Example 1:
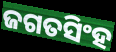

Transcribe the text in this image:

ଜଗତସିଂହ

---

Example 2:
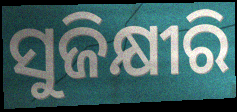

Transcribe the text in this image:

ସୁଜିକ୍ଷୀରି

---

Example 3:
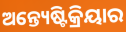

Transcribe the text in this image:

ଅନ୍ତ୍ୟେଷ୍ଟିକ୍ରିୟାର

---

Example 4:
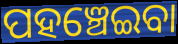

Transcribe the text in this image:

ପହଞ୍ଚେଇବା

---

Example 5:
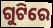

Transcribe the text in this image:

ଗୁଟିରେ